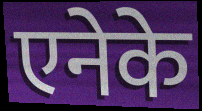
एनेके